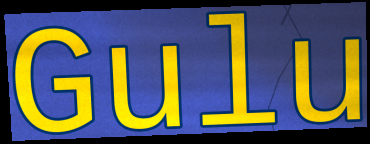
Gulu